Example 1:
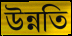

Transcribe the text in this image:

উন্নতি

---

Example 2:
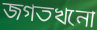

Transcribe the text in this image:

জগতখনো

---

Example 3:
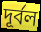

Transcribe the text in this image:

দূৰ্বল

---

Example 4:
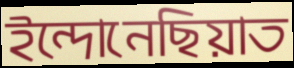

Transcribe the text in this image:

ইন্দোনেছিয়াত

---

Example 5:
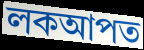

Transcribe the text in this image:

লকআপত